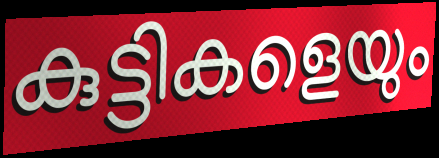
കുട്ടികളെയും